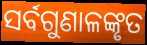
ସର୍ବଗୁଣାଳଙ୍କୃତ